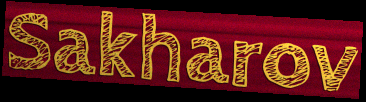
Sakharov